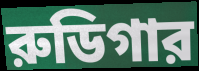
রুডিগার